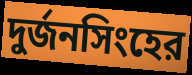
দুর্জনসিংহের